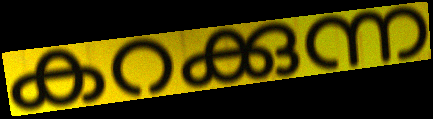
കറക്കുന്ന